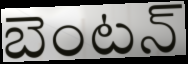
బెంటన్